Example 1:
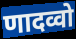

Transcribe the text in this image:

णादव्वो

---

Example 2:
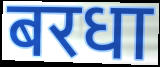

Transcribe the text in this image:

बरधा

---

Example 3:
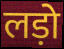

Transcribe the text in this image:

लड़ो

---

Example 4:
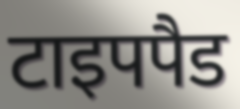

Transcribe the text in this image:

टाइपपैड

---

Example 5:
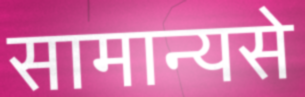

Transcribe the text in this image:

सामान्यसे